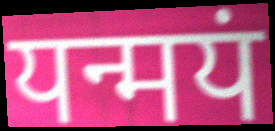
यन्मयं